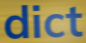
dict